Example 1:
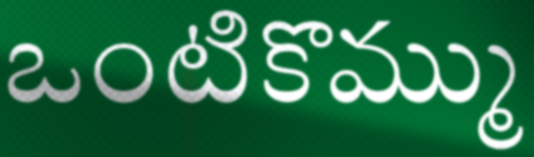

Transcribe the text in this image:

ఒంటికొమ్ము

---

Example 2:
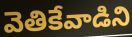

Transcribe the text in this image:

వెతికేవాడిని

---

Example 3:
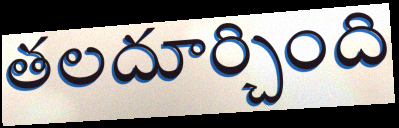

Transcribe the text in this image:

తలదూర్చింది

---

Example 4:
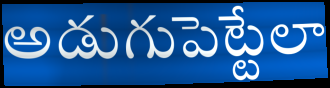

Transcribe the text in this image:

అడుగుపెట్టేలా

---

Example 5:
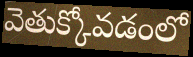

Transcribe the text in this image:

వెతుక్కోవడంలో